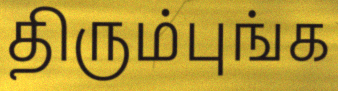
திரும்புங்க